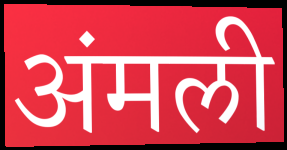
अंमली